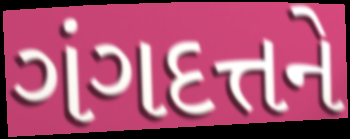
ગંગદત્તને